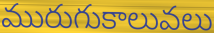
మురుగుకాలువలు